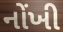
નોંખી